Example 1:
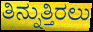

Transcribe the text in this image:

ತಿನ್ನುತ್ತಿರಲು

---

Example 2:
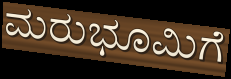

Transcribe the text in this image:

ಮರುಭೂಮಿಗೆ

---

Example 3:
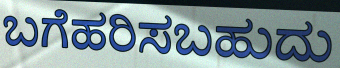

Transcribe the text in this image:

ಬಗೆಹರಿಸಬಹುದು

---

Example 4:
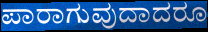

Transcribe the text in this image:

ಪಾರಾಗುವುದಾದರೂ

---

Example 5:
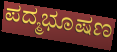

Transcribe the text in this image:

ಪದ್ಮಭೂಷಣ